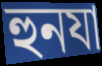
হুনযা